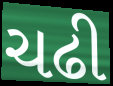
ચઢી